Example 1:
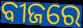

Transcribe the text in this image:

ବୀଜରେ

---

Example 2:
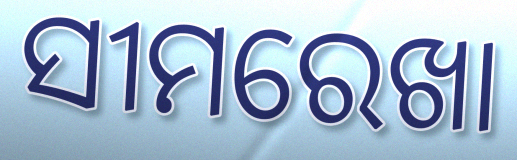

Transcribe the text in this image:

ସୀମରେଖା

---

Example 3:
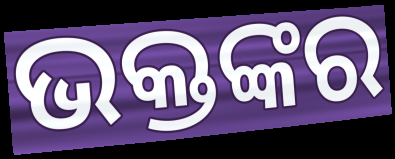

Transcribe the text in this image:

ଭକ୍ତଙ୍କର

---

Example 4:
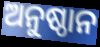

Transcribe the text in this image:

ଅନୁଷ୍ଠାନ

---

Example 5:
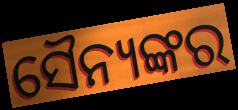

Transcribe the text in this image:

ସୈନ୍ୟଙ୍କର